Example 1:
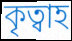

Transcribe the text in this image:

কৃত্বাহ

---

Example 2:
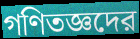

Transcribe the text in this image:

গণিতজ্ঞদের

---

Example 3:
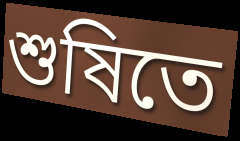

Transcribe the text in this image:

শুষিতে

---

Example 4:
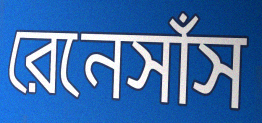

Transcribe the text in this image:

রেনেসাঁস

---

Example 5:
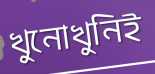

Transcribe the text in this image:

খুনোখুনিই